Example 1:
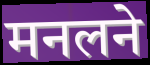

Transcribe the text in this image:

मनलने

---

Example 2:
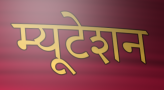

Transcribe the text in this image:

म्यूटेशन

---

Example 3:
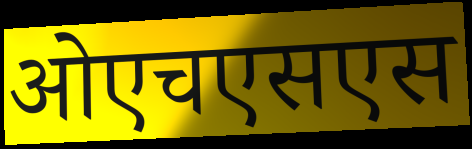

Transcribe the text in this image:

ओएचएसएस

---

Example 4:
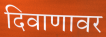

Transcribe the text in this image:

दिवाणावर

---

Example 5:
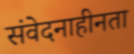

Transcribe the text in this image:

संवेदनाहीनता